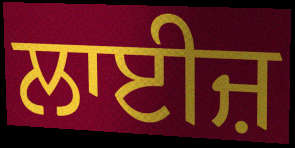
ਲਾਈਜ਼